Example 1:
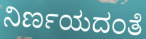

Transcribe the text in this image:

ನಿರ್ಣಯದಂತೆ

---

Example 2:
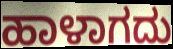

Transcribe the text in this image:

ಹಾಳಾಗದು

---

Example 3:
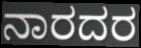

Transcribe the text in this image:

ನಾರದರ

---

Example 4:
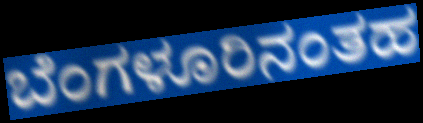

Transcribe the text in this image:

ಬೆಂಗಳೂರಿನಂತಹ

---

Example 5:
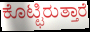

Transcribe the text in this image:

ಕೊಟ್ಟಿರುತ್ತಾರೆ